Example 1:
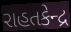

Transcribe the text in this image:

રાહતકેન્દ્ર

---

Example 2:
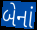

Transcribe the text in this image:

બેનાં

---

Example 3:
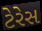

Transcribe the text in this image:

ટેરેસ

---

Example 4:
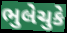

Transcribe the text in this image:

ભુલેચુકે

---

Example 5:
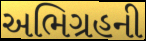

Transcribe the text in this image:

અભિગ્રહની